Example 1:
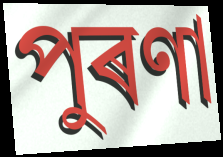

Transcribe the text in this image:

পুৰণা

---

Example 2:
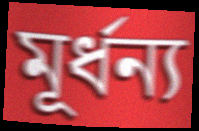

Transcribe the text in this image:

মূৰ্ধন্য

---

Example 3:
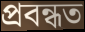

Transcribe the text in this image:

প্ৰবন্ধত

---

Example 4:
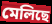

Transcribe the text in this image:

মেলিছে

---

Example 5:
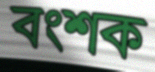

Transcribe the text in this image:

বংশক